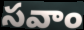
సవాం